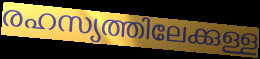
രഹസ്യത്തിലേക്കുള്ള